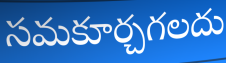
సమకూర్చగలదు